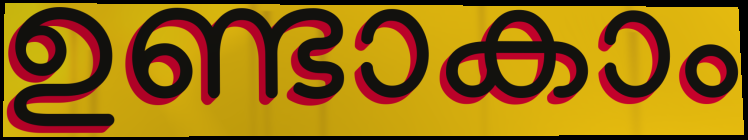
ഉണ്ടാകാം